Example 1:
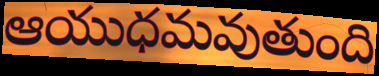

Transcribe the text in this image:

ఆయుధమవుతుంది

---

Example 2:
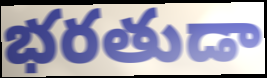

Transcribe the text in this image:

భరతుడా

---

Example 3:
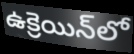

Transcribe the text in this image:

ఉక్రెయిన్‌లో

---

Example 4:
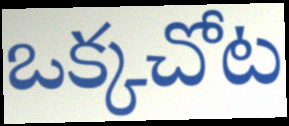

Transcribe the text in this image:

ఒక్కచోట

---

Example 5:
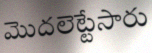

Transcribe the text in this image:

మొదలెట్టేసారు